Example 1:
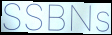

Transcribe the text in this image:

SSBNs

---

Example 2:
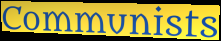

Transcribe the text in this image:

Communists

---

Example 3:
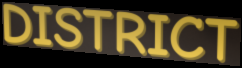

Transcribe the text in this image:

DISTRICT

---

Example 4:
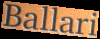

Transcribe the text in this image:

Ballari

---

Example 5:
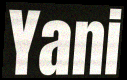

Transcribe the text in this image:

Yani